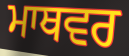
ਮਾਥਵਰ